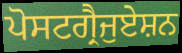
ਪੋਸਟਗ੍ਰੈਜੁਏਸ਼ਨ